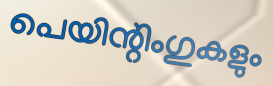
പെയിന്റിംഗുകളും